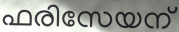
ഫരിസേയന്